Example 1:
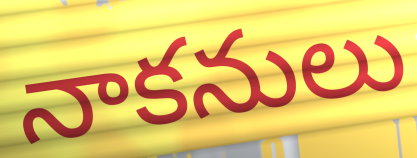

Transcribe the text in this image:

నాకనులు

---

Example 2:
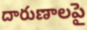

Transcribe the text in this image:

దారుణాలపై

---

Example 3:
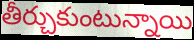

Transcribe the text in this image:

తీర్చుకుంటున్నాయి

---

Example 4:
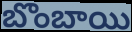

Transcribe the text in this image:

బొంబాయి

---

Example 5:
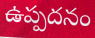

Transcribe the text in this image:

ఉప్పదనం